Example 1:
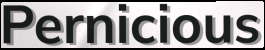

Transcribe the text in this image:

Pernicious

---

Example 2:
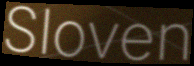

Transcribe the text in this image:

Sloven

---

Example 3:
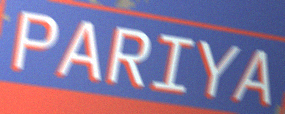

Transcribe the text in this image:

PARIYA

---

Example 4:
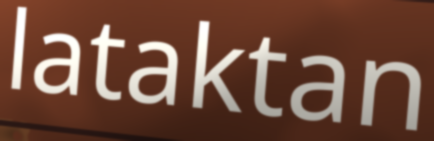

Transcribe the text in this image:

lataktan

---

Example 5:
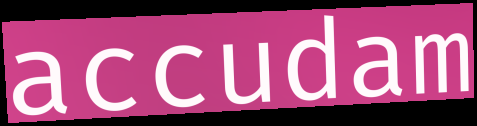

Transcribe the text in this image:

accudam